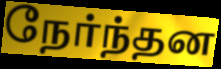
நேர்ந்தன